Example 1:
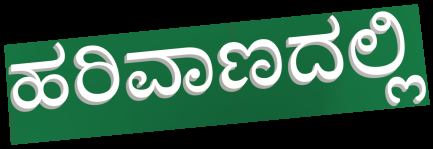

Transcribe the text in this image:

ಹರಿವಾಣದಲ್ಲಿ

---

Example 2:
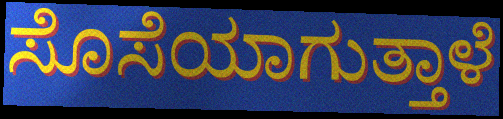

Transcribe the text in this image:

ಸೊಸೆಯಾಗುತ್ತಾಳೆ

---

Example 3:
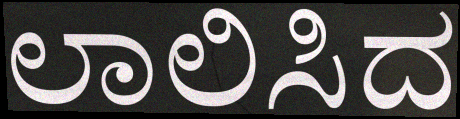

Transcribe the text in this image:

ಲಾಲಿಸಿದ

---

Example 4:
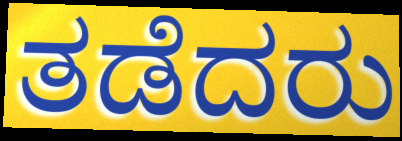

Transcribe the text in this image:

ತಡೆದರು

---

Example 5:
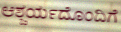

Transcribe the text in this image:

ಆಶ್ಚರ್ಯದೊಂದಿಗೆ